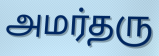
அமர்தரு